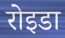
रोइडा